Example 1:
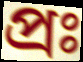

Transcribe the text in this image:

প্ৰঃ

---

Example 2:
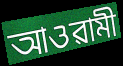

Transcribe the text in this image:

আওৱামী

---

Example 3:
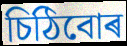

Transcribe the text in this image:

চিঠিবোৰ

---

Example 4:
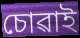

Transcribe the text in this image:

চোৱাই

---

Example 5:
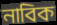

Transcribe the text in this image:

নাবিক